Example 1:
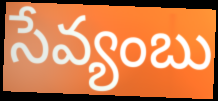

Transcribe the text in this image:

సేవ్యంబు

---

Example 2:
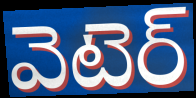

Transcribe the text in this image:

వెటెర్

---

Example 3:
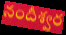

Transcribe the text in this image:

నందీశ్వర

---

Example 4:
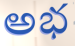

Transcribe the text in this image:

అభ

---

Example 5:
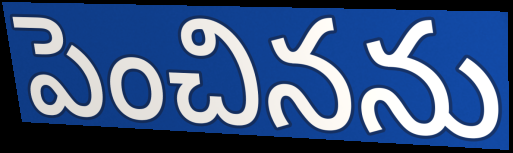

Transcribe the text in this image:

పెంచినను